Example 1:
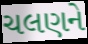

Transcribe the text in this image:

ચલણને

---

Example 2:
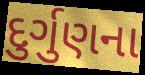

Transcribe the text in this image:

દુર્ગુણના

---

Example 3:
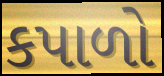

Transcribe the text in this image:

કપાળો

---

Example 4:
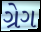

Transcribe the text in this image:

ગ્રેગ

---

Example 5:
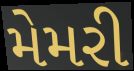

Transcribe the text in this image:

મેમરી